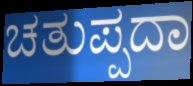
ಚತುಪ್ಪದಾ